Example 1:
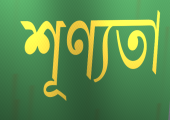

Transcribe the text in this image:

শূণ্যতা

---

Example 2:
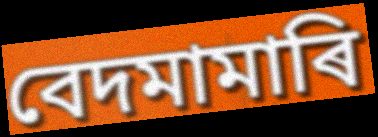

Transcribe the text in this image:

বেদমামাৰি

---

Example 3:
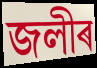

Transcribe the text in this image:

জলীৰ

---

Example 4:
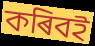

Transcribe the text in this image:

কৰিবই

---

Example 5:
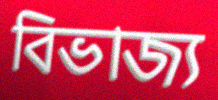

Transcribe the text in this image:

বিভাজ্য